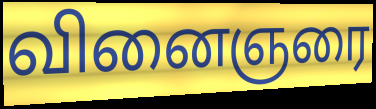
வினைஞரை